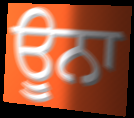
ਊਨਾ